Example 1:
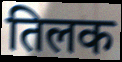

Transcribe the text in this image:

तिलक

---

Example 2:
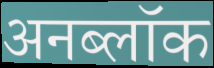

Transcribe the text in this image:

अनब्लॉक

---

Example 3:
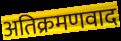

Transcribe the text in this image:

अतिक्रमणवाद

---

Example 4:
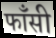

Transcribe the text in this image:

फाँसी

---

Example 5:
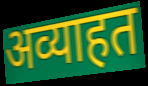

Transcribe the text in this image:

अव्याहत